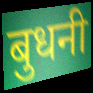
बुधनी